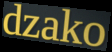
dzako